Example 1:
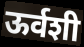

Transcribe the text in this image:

ऊर्वशी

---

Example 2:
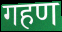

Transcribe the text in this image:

गहण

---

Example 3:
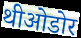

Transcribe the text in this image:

थीओडोर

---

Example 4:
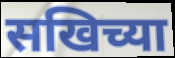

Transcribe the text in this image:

सखिच्या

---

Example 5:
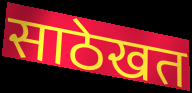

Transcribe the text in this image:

साठेखत